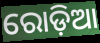
ରୋଡ଼ିଆ